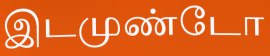
இடமுண்டோ